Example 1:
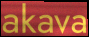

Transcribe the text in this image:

akava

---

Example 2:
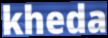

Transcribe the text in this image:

kheda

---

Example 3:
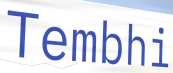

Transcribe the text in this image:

Tembhi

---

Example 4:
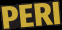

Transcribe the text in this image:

PERI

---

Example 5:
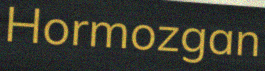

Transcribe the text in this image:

Hormozgan